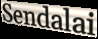
Sendalai